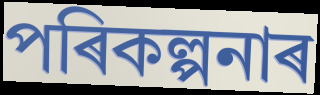
পৰিকল্পনাৰ